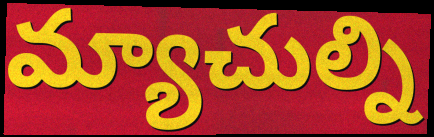
మ్యాచుల్ని